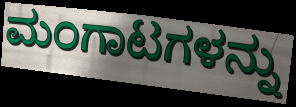
ಮಂಗಾಟಗಳನ್ನು